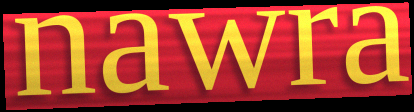
nawra